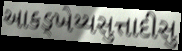
આકઙ્ખેય્યસુત્તાદીસુ